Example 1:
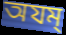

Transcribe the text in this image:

অযম্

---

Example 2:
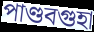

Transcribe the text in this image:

পাণ্ডবগুহা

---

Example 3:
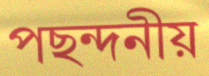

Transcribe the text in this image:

পছন্দনীয়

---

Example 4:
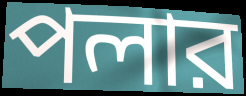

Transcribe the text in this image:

পলার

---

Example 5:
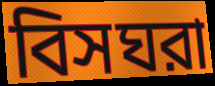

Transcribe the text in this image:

বিসঘরা